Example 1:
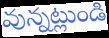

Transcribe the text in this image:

వున్నట్లుండి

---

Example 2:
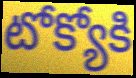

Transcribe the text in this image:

టోక్యోకి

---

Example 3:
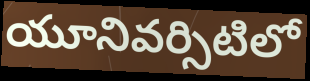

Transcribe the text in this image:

యూనివర్సిటిలో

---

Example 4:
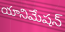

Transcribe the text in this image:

యానిమేషన్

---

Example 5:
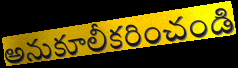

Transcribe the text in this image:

అనుకూలీకరించండి